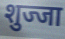
शुज्जा